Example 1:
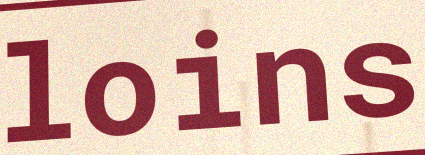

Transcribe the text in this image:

loins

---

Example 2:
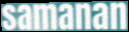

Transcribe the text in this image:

samanan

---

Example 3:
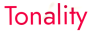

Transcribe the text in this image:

Tonality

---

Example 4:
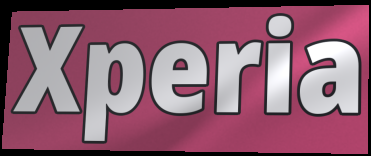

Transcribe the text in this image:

Xperia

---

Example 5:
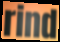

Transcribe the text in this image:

rind